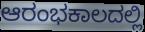
ಆರಂಭಕಾಲದಲ್ಲಿ